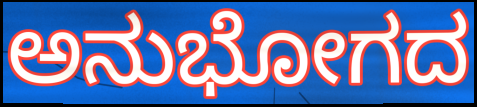
ಅನುಭೋಗದ